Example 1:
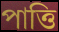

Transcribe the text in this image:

পাত্তি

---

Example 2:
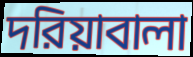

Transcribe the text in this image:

দরিয়াবালা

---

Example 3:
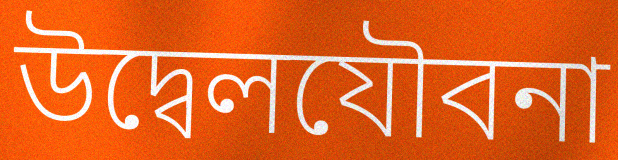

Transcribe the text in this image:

উদ্বেলযৌবনা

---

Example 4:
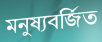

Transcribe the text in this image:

মনুষ্যবর্জিত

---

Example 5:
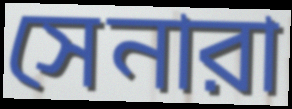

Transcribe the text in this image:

সেনারা